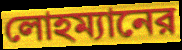
লোহম্যানের